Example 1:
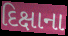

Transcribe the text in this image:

દિક્ષાના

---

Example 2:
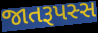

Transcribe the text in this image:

જાતરૂપસ્સ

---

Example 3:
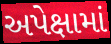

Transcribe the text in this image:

અપેક્ષામાં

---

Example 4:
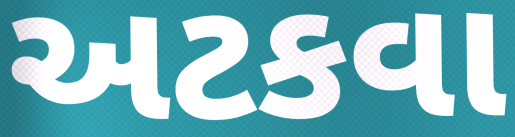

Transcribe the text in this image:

અટકવા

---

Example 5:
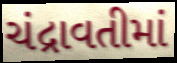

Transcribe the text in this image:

ચંદ્રાવતીમાં